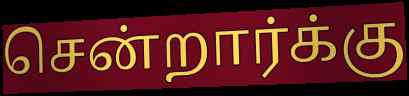
சென்றார்க்கு